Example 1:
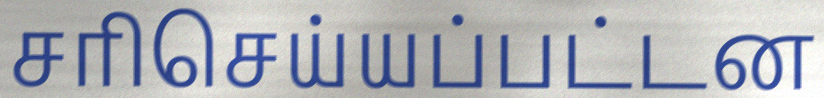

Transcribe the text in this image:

சரிசெய்யப்பட்டன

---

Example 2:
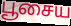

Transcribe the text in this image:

பூசைய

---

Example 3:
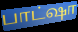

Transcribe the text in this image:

பாட்ஷா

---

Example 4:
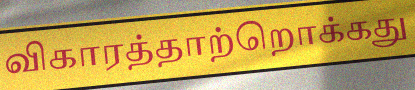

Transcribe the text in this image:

விகாரத்தாற்றொக்கது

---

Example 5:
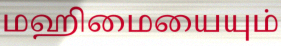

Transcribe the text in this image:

மஹிமையையும்